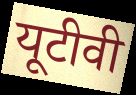
यूटीवी